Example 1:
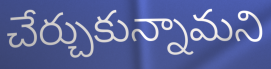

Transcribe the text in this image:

చేర్చుకున్నామని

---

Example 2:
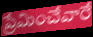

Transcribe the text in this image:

ప్రేమించేవారే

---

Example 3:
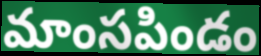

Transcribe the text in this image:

మాంసపిండం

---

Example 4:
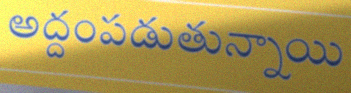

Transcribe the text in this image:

అద్దంపడుతున్నాయి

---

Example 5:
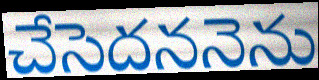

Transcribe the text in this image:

చేసెదననెను